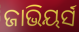
ଜାଭିୟର୍ସ